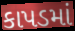
કાપડમાં